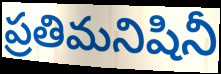
ప్రతిమనిషినీ